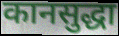
कानसुद्धा